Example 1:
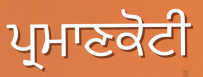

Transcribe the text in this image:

ਪ੍ਰਮਾਣਕੋਟੀ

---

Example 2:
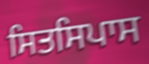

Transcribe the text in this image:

ਸਿਤਸਿਪਾਸ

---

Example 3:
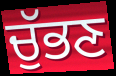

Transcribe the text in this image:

ਚੁੱਭਣ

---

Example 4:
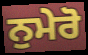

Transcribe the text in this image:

ਨੁਮੇਰੋ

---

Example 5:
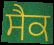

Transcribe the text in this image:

ਸੈਕ